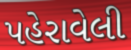
પહેરાવેલી